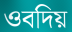
ওবদিয়